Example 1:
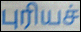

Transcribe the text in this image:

புரியச்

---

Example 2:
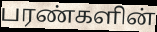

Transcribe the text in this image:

பரண்களின்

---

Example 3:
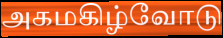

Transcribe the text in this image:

அகமகிழ்வோடு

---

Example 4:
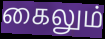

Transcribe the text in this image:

கைலும்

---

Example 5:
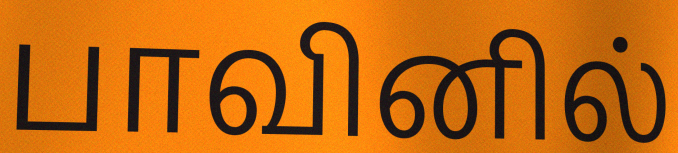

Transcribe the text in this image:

பாவினில்